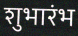
शुभारंभ